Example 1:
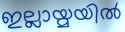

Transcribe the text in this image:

ഇല്ലായ്മയിൽ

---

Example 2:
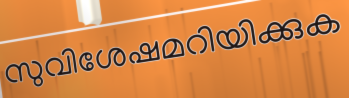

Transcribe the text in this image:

സുവിശേഷമറിയിക്കുക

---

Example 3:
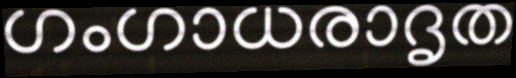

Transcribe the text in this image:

ഗംഗാധരാദൃത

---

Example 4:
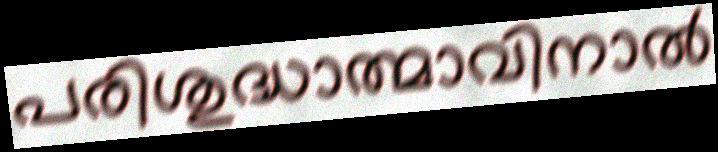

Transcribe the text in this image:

പരിശുദ്ധാത്മാവിനാൽ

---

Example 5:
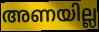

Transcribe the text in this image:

അണയില്ല